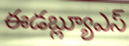
ఈడబ్ల్యూఎస్